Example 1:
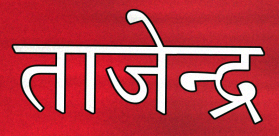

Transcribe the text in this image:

ताजेन्द्र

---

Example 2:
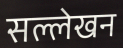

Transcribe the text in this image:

सल्लेखन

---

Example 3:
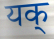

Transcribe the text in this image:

यक्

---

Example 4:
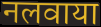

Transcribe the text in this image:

नलवाया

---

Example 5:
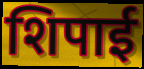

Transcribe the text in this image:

शिपाई